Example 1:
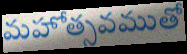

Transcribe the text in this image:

మహోత్సవముతో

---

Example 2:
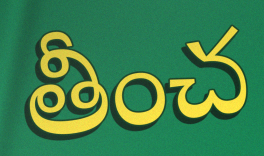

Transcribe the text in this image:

తీంచ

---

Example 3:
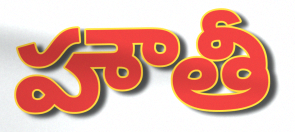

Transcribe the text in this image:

హౌతీ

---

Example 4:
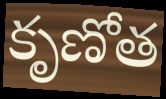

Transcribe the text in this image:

కృణోత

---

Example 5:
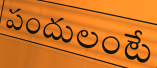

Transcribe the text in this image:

పందులంటే